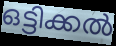
ഒട്ടിക്കൽ